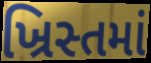
ખ્રિસ્તમાં